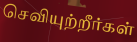
செவியுற்றீர்கள்